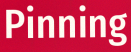
Pinning